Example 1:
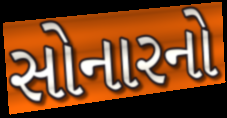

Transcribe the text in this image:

સોનારનો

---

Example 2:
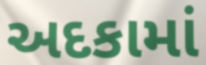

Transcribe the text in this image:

અદકામાં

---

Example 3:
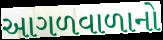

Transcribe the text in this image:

આગળવાળાનો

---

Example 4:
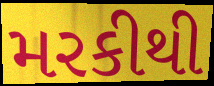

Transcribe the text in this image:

મરકીથી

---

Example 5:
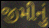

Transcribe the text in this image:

જીમીનું